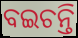
ବଇଚନ୍ତି